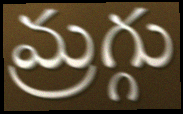
మ్రగ్గు